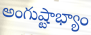
అంగుష్టాభ్యాం